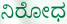
ನಿರೋಧ